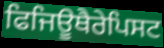
ਫਿਜਿਊਥੈਰੇਪਿਸਟ